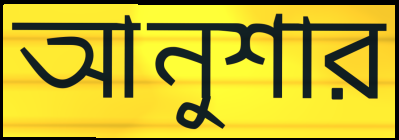
আনুশার